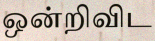
ஒன்றிவிட